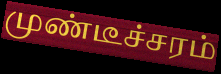
முண்டீச்சரம்